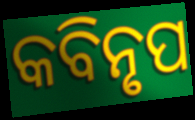
କବିନୃପ